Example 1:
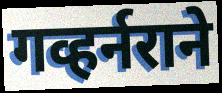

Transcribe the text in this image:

गव्हर्नराने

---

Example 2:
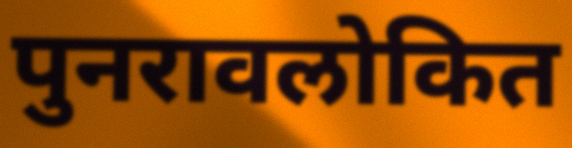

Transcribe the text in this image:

पुनरावलोकित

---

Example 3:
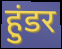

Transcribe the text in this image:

हुंडर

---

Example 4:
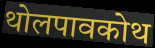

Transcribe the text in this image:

थोलपावकोथ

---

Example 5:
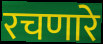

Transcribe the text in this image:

रचणारे